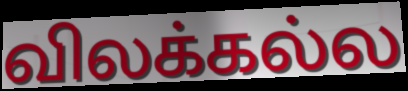
விலக்கல்ல